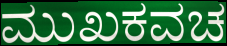
ಮುಖಕವಚ